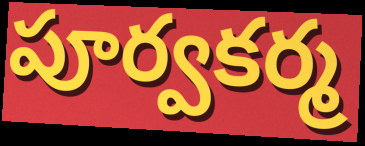
పూర్వకర్మ